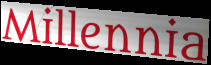
Millennia